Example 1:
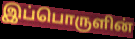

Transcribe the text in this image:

இப்பொருளின்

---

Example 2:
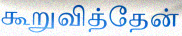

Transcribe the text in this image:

கூறுவித்தேன்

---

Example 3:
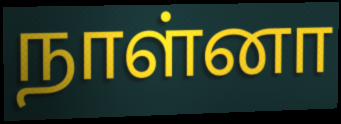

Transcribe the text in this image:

நாள்னா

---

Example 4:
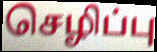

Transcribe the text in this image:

செழிப்பு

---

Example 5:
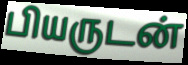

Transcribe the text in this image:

பியருடன்